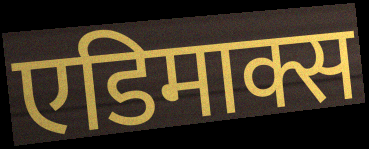
एडिमाक्स